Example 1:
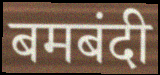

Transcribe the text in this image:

बमबंदी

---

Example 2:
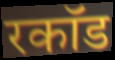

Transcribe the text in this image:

रकॉड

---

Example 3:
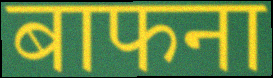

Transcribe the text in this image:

बाफना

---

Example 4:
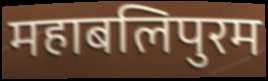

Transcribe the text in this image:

महाबलिपुरम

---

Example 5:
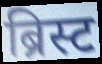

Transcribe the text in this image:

ब्रिस्ट